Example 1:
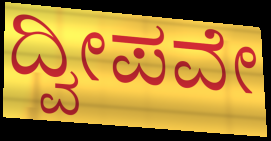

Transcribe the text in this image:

ದ್ವೀಪವೇ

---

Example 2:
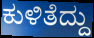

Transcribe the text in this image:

ಕುಳಿತೆದ್ದು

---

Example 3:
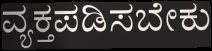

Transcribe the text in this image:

ವ್ಯಕ್ತಪಡಿಸಬೇಕು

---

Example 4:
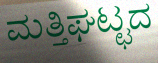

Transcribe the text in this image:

ಮತ್ತಿಘಟ್ಟದ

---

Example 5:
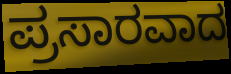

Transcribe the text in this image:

ಪ್ರಸಾರವಾದ